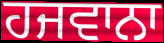
ਹਜਵਾਨਾ